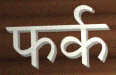
फर्क